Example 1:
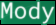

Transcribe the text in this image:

Mody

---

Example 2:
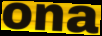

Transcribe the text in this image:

ona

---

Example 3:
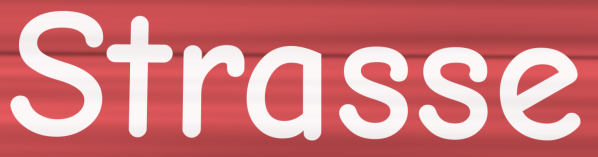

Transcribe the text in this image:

Strasse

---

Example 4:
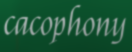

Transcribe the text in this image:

cacophony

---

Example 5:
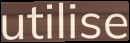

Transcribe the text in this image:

utilise